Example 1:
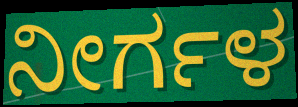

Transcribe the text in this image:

ನೀರ್ಗಳ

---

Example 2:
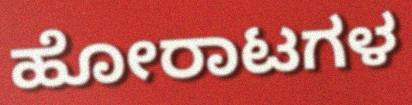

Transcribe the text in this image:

ಹೋರಾಟಗಳ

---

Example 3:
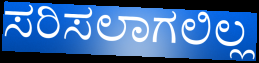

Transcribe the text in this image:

ಸರಿಸಲಾಗಲಿಲ್ಲ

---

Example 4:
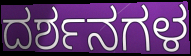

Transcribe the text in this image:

ದರ್ಶನಗಳ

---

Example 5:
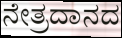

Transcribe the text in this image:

ನೇತ್ರದಾನದ